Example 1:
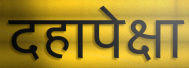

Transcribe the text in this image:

दहापेक्षा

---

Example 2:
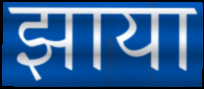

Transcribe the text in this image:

झाया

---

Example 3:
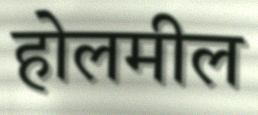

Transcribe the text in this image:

होलमील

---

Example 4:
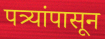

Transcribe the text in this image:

पत्र्यांपासून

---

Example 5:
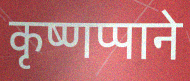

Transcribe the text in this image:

कृष्णप्पाने